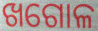
ଖଗୋଳ